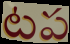
టప